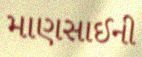
માણસાઈની